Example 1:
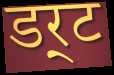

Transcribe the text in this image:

डर्ट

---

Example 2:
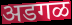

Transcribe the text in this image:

अडगळ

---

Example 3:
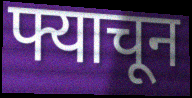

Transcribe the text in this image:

फ्याचून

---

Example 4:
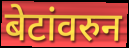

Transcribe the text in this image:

बेटांवरुन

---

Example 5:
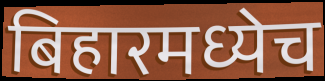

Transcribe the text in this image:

बिहारमध्येच